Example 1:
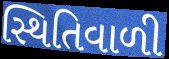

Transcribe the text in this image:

સ્થિતિવાળી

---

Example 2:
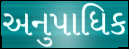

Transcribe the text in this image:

અનુપાધિક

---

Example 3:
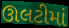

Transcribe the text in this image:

ઊલટીમાં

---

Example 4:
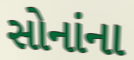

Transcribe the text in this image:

સોનાંના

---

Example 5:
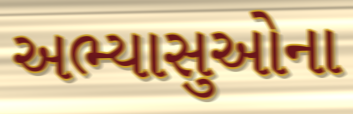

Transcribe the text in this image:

અભ્યાસુઓના